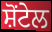
ਸ਼ੋਂਟੇਲ